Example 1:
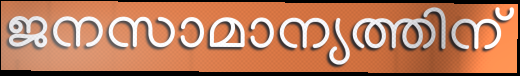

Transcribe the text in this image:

ജനസാമാന്യത്തിന്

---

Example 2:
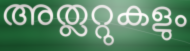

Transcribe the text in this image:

അത്ലറ്റുകളും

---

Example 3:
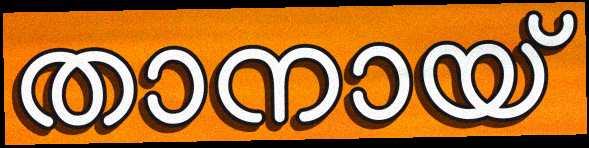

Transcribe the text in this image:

താനായ്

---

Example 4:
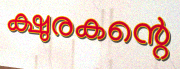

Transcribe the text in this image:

ക്ഷുരകന്റെ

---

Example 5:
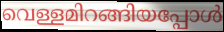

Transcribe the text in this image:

വെള്ളമിറങ്ങിയപ്പോൾ